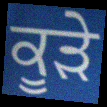
ਕੂਡ਼ੇ